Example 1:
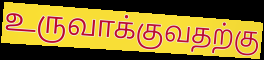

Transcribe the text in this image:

உருவாக்குவதற்கு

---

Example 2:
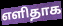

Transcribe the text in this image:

எளிதாக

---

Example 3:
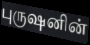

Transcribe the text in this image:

புருஷனின்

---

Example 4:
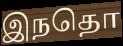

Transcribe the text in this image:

இநதொ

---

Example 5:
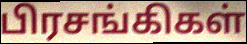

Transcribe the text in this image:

பிரசங்கிகள்